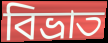
বিভ্ৰাত